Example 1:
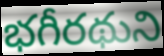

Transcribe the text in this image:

భగీరథుని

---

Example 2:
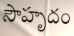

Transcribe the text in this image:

సౌహృదం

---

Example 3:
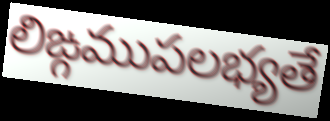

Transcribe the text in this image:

లిఙ్గముపలభ్యతే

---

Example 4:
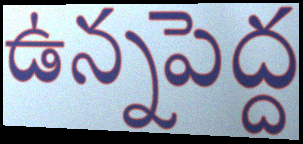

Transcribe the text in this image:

ఉన్నపెద్ద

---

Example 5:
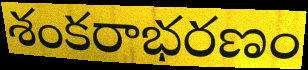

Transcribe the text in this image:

శంకరాభరణం